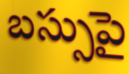
బస్సుపై